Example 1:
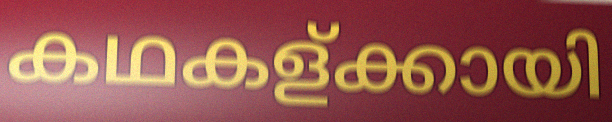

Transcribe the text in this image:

കഥകള്ക്കായി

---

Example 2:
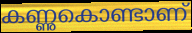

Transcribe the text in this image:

കണ്ണുകൊണ്ടാണ്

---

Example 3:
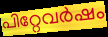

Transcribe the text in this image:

പിറ്റേവർഷം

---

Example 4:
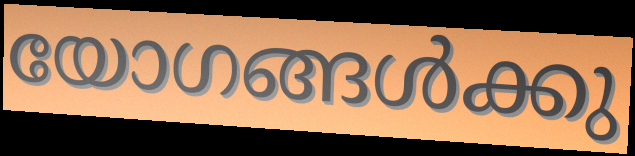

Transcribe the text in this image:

യോഗങ്ങൾക്കു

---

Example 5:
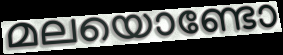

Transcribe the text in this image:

മലയൊണ്ടോ